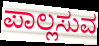
ಪಾಲ್ಲಸುವ